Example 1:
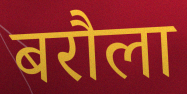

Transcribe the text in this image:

बरौला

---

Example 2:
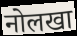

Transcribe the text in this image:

नोलखा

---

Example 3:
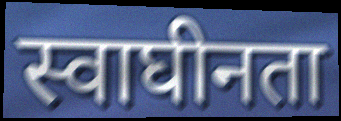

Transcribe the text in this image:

स्वाघीनता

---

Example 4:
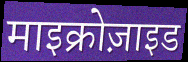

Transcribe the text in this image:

माइक्रोज़ाइड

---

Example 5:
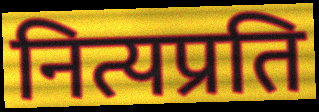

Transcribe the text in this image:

नित्यप्रति